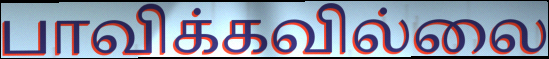
பாவிக்கவில்லை